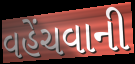
વહેંચવાની